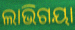
ଲାଭିଗୟା